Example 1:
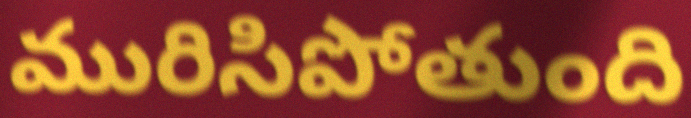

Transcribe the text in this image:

మురిసిపోతుంది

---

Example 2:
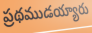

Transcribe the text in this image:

ప్రథముడయ్యారు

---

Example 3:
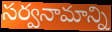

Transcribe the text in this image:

సర్వనామాన్ని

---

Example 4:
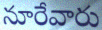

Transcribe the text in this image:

నూరేవారు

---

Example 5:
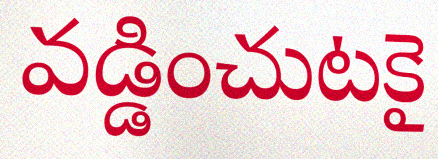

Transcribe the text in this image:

వడ్డించుటకై